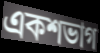
একশভাগ